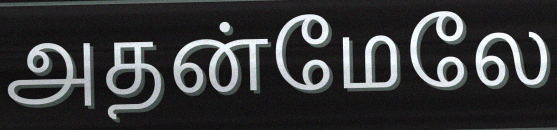
அதன்மேலே